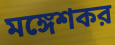
মঙ্গেশকর